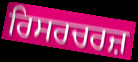
ਰਿਸਰਚਰਜ਼